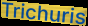
Trichuris